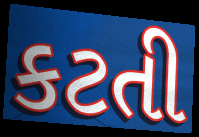
કટતી